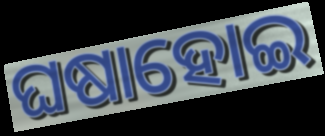
ଘଷାହୋଇ